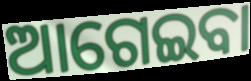
ଆଗେଇବା